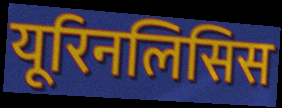
यूरिनलिसिस